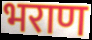
भराण